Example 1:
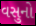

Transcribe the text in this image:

વસુનો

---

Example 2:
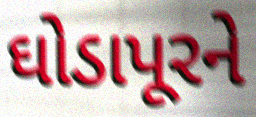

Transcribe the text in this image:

ઘોડાપૂરને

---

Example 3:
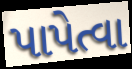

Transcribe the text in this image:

પાપેત્વા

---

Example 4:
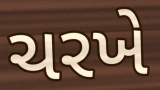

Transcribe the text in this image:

ચરખે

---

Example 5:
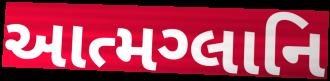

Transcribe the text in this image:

આત્મગ્લાનિ